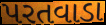
પરતવાડા